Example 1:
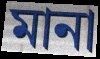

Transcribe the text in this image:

মানা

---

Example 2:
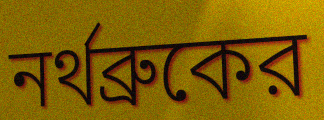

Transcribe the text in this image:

নর্থব্রুকের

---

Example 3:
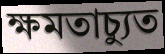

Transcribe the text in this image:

ক্ষমতাচ্যুত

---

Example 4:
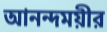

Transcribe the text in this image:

আনন্দময়ীর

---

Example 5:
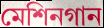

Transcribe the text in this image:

মেশিনগান